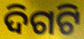
ଦିଗଟି